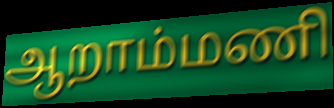
ஆறாம்மணி